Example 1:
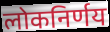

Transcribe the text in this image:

लोकनिर्णय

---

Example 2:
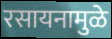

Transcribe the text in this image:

रसायनामुळे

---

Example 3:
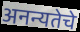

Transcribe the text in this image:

अनन्यतेचे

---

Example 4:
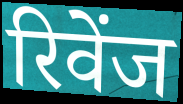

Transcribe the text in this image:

रिवेंज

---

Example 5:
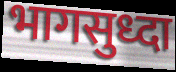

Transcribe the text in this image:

भागसुध्दा